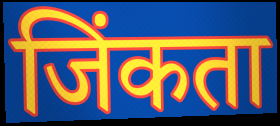
जिंकता